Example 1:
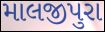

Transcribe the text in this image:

માલજીપુરા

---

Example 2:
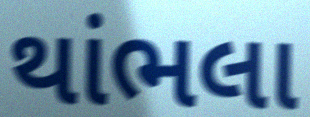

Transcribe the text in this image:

થાંભલા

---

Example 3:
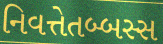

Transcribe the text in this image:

નિવત્તેતબ્બસ્સ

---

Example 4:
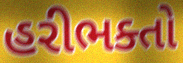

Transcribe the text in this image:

હરીભક્તો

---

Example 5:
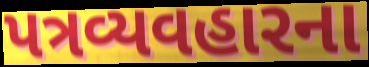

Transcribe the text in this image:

પત્રવ્યવહારના